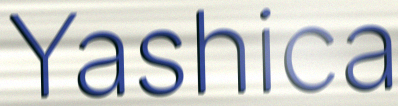
Yashica